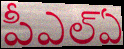
పీఎల్ఏ